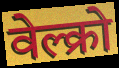
वेल्क्रो